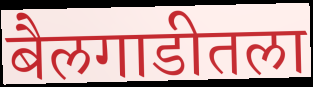
बैलगाडीतला